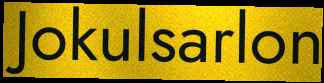
Jokulsarlon